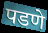
पडणे